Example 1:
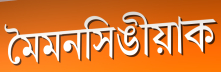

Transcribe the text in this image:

মৈমনসিঙীয়াক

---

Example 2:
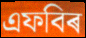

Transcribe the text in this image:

এফবিৰ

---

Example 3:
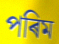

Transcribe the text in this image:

পৰিম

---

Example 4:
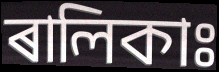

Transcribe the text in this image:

ৰালিকাঃ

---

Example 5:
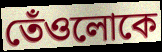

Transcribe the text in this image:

তেঁওলোকে